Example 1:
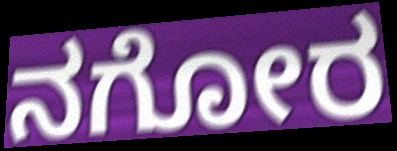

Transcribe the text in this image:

ನಗೋರ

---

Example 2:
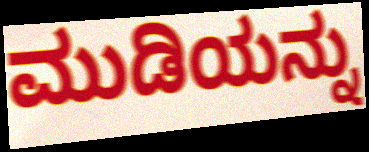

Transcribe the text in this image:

ಮುಡಿಯನ್ನು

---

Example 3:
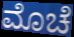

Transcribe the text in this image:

ಮೊಚೆ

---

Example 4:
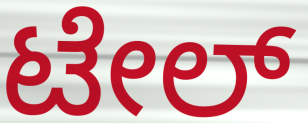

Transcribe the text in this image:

ಟೇಲ್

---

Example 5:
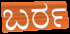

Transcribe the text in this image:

ಬರ್ರ